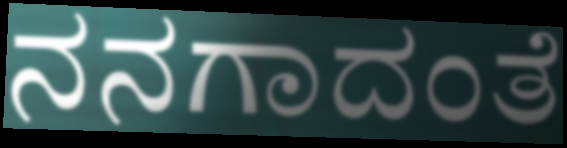
ನನಗಾದಂತೆ